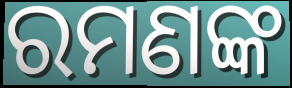
ରମଣଙ୍କ